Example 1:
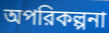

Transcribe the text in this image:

অপরিকল্পনা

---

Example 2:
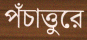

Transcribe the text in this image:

পঁচাত্তুরে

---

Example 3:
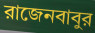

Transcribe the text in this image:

রাজেনবাবুর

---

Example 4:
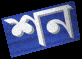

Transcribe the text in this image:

শন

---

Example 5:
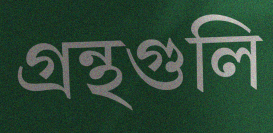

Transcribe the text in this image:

গ্রন্থগুলি